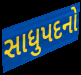
સાધુપદનો